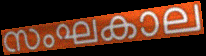
സംഘകാല